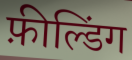
फ़ील्डिंग